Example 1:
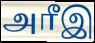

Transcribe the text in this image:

அரீஇ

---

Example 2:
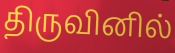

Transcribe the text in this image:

திருவினில்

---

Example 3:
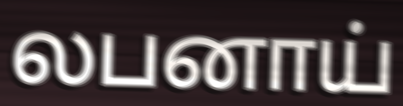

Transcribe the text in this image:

லபனாய்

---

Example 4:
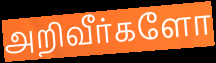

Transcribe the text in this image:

அறிவீர்களோ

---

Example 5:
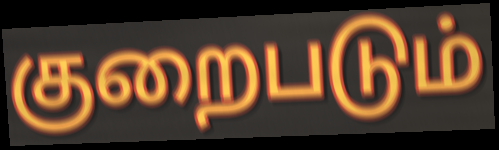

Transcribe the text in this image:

குறைபடும்